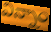
విన్నాం